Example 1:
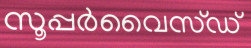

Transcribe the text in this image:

സൂപ്പർവൈസ്ഡ്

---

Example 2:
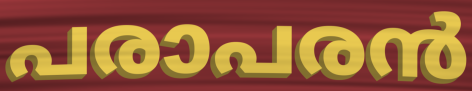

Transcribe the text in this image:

പരാപരൻ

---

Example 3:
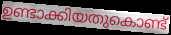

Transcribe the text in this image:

ഉണ്ടാക്കിയതുകൊണ്ട്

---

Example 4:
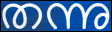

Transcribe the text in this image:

തന്നു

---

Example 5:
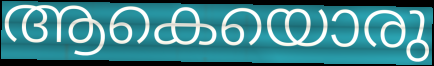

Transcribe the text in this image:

ആകെയൊരു